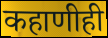
कहाणीही